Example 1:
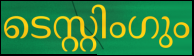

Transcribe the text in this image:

ടെസ്റ്റിംഗും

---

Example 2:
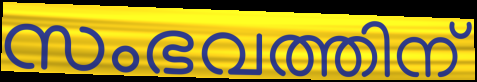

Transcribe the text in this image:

സംഭവത്തിന്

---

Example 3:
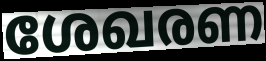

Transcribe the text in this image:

ശേഖരണ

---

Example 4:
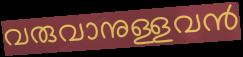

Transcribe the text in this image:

വരുവാനുള്ളവൻ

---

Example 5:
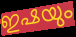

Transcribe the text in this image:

ഇഷയും